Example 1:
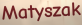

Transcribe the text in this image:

Matyszak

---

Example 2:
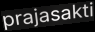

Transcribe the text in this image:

prajasakti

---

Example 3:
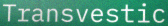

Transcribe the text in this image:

Transvestic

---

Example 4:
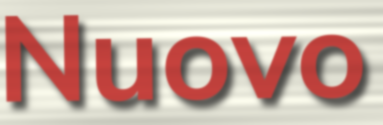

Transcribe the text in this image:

Nuovo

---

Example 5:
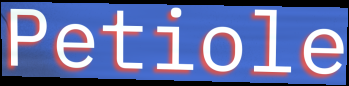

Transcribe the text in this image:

Petiole